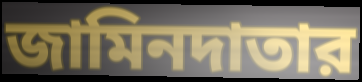
জামিনদাতার